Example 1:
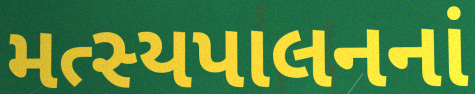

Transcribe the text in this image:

મત્સ્યપાલનનાં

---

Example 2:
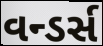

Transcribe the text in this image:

વન્ડર્સ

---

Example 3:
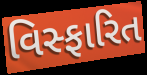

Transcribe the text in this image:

વિસ્ફારિત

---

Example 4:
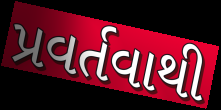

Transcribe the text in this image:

પ્રવર્તવાથી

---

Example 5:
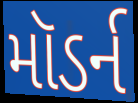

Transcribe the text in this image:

મૉડર્ન